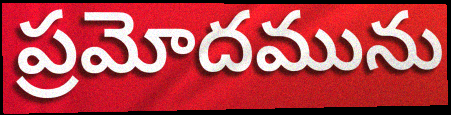
ప్రమోదమును